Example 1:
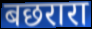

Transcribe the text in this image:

बछरारा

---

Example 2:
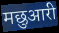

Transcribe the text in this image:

मछुआरी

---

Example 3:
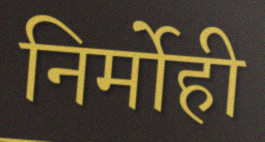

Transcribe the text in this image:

निर्मोही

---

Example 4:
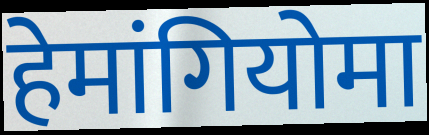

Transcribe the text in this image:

हेमांगियोमा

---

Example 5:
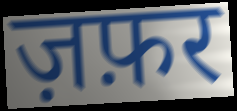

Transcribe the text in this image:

ज़फ़र